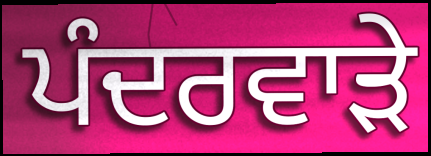
ਪੰਦਰਵਾੜੇ